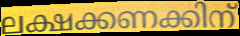
ലക്ഷക്കണക്കിന്